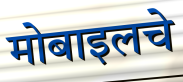
मोबाइलचे